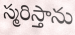
స్మరిస్తాను